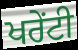
ਖਰੇਂਟੀ